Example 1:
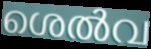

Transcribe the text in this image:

ശെൽവ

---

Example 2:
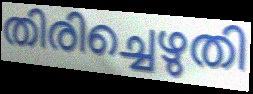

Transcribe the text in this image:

തിരിച്ചെഴുതി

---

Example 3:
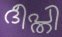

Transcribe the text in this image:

ദീപ്തി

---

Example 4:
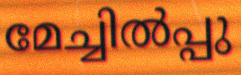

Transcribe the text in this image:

മേച്ചിൽപ്പു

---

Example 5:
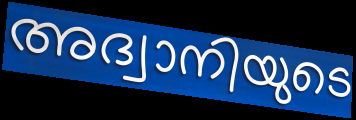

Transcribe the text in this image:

അദ്വാനിയുടെ